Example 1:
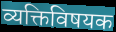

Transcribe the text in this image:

व्यक्तिविषयक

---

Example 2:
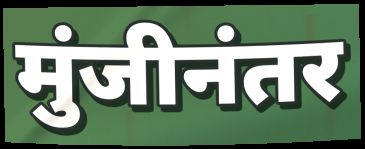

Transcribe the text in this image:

मुंजीनंतर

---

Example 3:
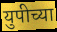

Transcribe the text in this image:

युपीच्या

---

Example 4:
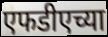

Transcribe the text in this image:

एफडीएच्या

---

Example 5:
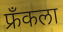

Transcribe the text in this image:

फ्रॅंकला